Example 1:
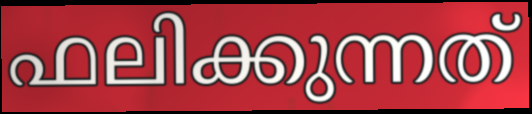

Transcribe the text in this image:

ഫലിക്കുന്നത്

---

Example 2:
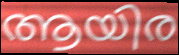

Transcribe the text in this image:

ആയിര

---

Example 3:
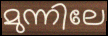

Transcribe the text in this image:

മുന്നിലേ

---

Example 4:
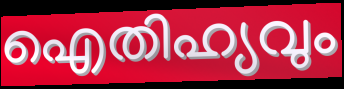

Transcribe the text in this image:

ഐതിഹ്യവും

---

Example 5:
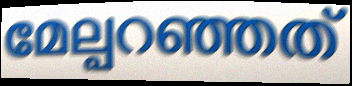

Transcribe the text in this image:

മേല്പറഞ്ഞത്